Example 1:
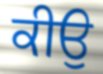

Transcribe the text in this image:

ਕੀਉ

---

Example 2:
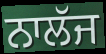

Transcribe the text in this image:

ਨਾਲੱਜ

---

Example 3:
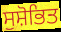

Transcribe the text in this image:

ਸੁਸ਼ੋਭਿਤ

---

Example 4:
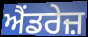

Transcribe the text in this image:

ਐਂਡਰੇਜ਼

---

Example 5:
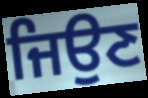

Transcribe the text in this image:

ਜਿਉਣ